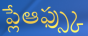
ప్లేఆఫ్స్కు